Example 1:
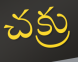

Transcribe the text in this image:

చక్రు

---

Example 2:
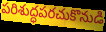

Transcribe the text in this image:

పరిశుద్ధపరచుకొనుడి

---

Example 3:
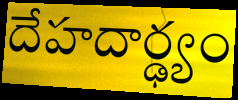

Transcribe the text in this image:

దేహదార్ఢ్యం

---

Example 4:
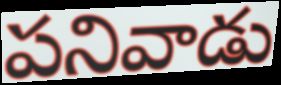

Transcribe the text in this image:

పనివాడు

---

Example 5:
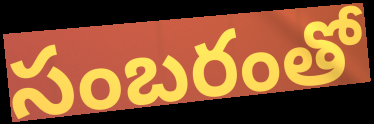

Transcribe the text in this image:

సంబరంతో